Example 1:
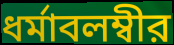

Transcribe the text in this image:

ধর্মাবলম্বীর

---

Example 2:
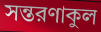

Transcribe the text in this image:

সন্তরণাকুল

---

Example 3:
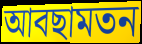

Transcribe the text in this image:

আবছামতন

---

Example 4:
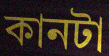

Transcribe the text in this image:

কানটা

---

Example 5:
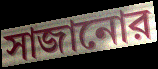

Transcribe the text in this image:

সাজানোর